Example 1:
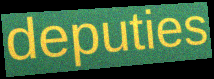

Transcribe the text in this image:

deputies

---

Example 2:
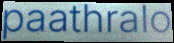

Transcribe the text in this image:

paathralo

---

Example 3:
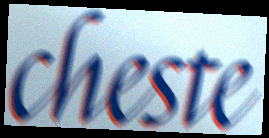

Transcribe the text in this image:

cheste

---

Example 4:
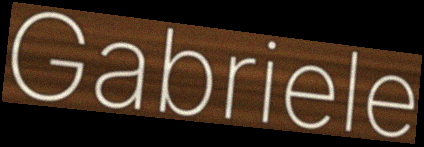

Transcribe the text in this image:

Gabriele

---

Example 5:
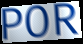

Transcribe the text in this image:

POR